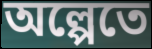
অল্পেতে